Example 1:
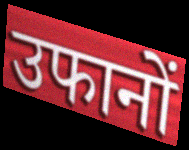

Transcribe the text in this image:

उफानों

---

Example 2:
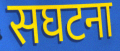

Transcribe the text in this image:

सघटना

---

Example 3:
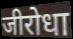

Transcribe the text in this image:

जीरोधा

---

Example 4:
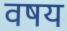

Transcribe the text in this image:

वषय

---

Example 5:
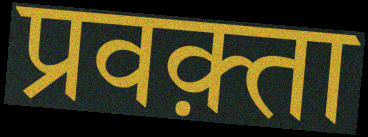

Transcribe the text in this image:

प्रवक़्ता